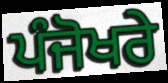
ਪੰਜੋਖਰੇ